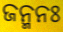
ଜନ୍ମନଃ